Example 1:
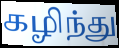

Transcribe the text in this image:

கழிந்து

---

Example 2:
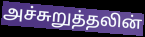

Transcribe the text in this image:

அச்சுறுத்தலின்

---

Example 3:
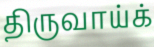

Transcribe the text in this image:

திருவாய்க்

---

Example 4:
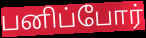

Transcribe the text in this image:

பனிப்போர்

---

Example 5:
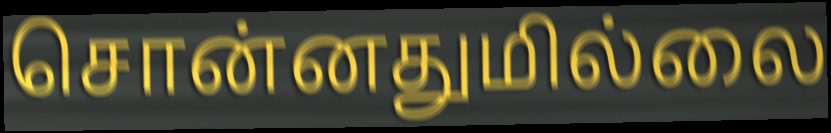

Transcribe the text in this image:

சொன்னதுமில்லை